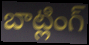
బాట్లింగ్